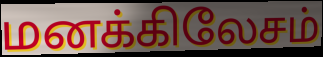
மனக்கிலேசம்